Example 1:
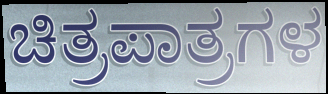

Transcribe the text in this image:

ಚಿತ್ರಪಾತ್ರಗಳ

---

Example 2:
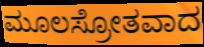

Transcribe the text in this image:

ಮೂಲಸ್ರೋತವಾದ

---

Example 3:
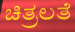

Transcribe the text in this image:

ಚಿತ್ರಲತೆ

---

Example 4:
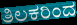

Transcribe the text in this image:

ತಿಲಕರಿಂದ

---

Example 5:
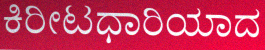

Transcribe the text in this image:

ಕಿರೀಟಧಾರಿಯಾದ